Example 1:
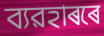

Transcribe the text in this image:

ব্যৱহাৰৰে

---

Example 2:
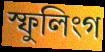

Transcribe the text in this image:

স্ফুলিংগ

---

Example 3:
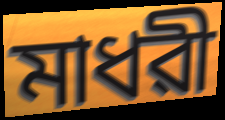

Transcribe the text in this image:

মাধৱী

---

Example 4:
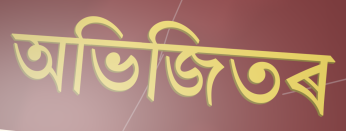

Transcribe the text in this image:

অভিজিতৰ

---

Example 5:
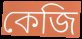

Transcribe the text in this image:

কেজি